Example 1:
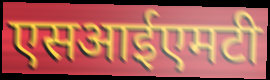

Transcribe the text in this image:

एसआईएमटी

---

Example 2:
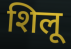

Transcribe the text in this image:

शिलू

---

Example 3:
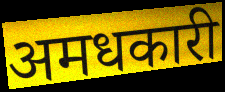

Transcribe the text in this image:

अमधकारी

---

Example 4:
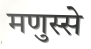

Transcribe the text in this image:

मणुस्से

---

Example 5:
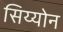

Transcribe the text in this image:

सिय्योन